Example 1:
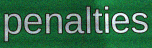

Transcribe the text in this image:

penalties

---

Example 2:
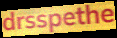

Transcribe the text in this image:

drsspethe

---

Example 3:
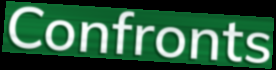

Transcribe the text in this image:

Confronts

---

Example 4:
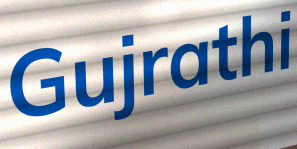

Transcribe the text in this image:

Gujrathi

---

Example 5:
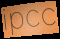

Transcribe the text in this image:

ipcc